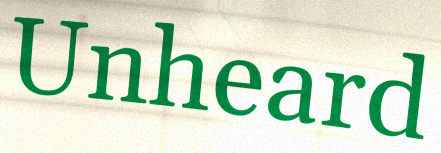
Unheard